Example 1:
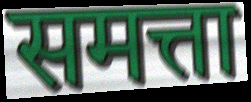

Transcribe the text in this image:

समत्ता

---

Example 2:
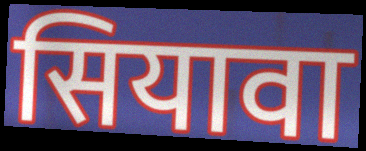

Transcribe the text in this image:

सियावा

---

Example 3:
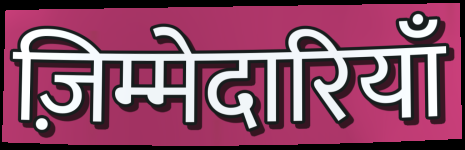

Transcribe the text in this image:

ज़िम्मेदारियाँ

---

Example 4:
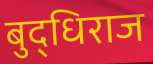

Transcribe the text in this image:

बुद्धिराज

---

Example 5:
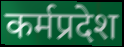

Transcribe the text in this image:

कर्मप्रदेश